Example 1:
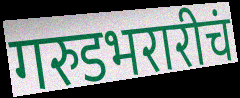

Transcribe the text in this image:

गरुडभरारीचं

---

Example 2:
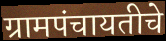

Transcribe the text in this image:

ग्रामपंचायतीचे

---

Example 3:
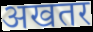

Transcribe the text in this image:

अखतर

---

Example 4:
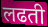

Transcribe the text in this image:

लढती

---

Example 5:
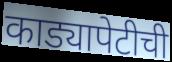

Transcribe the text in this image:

काड्यापेटीची